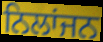
ਨਿਲਾਂਜਨ